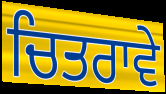
ਚਿਤਰਾਵੇ